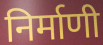
निर्माणी